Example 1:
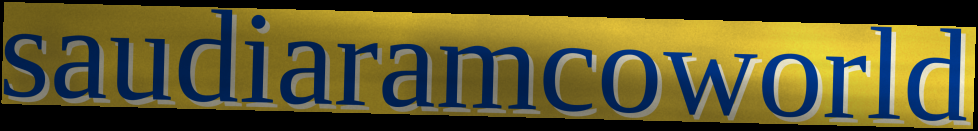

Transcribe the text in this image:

saudiaramcoworld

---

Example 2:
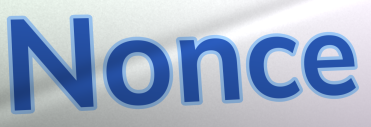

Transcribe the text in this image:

Nonce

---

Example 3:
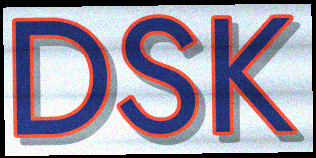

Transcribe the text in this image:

DSK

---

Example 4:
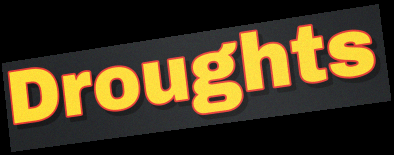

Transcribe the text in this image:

Droughts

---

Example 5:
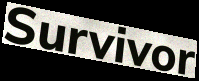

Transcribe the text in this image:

Survivor